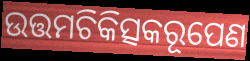
ଉତ୍ତମଚିକିତ୍ସକରୂପେଣ